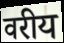
वरीय